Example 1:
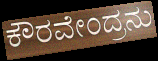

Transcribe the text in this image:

ಕೌರವೇಂದ್ರನು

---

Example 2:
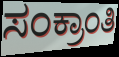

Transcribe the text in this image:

ಸಂಕ್ರಾಂತಿ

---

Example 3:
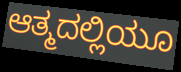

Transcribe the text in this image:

ಆತ್ಮದಲ್ಲಿಯೂ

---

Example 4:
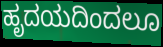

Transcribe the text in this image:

ಹೃದಯದಿಂದಲೂ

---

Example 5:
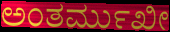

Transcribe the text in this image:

ಅಂತರ್ಮುಖೀ